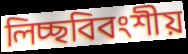
লিচ্ছবিবংশীয়